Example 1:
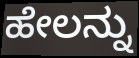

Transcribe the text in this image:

ಹೇಲನ್ನು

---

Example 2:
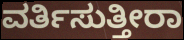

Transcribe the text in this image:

ವರ್ತಿಸುತ್ತೀರಾ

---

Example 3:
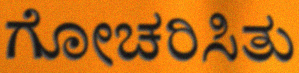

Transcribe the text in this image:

ಗೋಚರಿಸಿತು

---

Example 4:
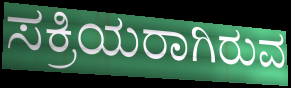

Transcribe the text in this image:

ಸಕ್ರಿಯರಾಗಿರುವ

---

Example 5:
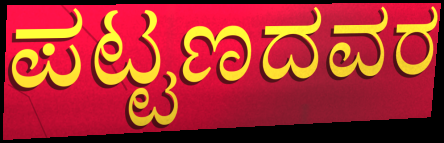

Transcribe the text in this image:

ಪಟ್ಟಣದವರ